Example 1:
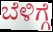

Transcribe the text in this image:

ಬೆಳಿಗ್ಗೆ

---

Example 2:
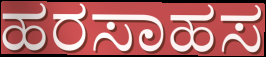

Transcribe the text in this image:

ಹರಸಾಹಸ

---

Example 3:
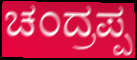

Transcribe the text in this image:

ಚಂದ್ರಪ್ಪ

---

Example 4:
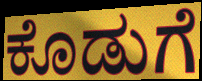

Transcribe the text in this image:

ಕೊಡುಗೆ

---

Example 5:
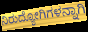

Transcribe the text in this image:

ನಿರುದ್ಯೋಗಿಗಳನ್ನಾಗಿ